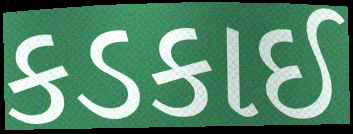
કડકાઈ